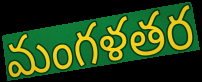
మంగళతర